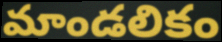
మాండలికం